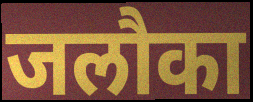
जलौका